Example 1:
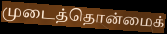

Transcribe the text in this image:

முடைத்தொன்மைக்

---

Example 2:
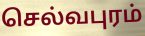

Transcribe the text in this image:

செல்வபுரம்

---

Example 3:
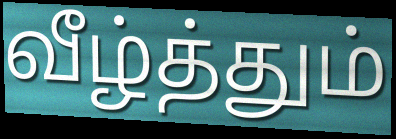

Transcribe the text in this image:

வீழ்த்தும்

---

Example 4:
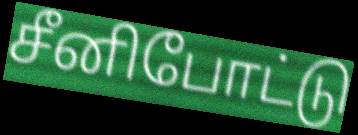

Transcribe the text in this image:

சீனிபோட்டு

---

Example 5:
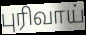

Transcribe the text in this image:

புரிவாய்